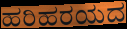
ಹರಿಹರಯದ